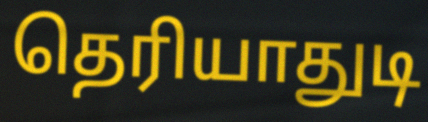
தெரியாதுடி